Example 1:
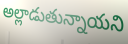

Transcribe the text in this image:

అల్లాడుతున్నాయని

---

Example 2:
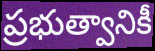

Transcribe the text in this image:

ప్రభుత్వానికీ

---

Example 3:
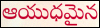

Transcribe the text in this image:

ఆయుధమైన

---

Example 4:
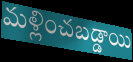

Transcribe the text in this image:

మళ్లించబడ్డాయి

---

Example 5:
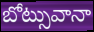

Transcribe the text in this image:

బోట్సువానా